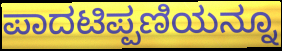
ಪಾದಟಿಪ್ಪಣಿಯನ್ನೂ